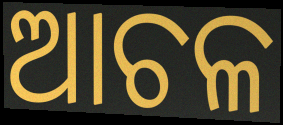
ଆଚଳ